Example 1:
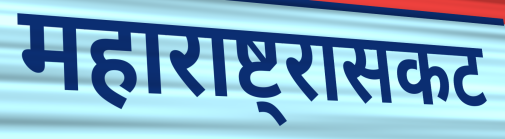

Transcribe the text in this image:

महाराष्ट्रासकट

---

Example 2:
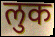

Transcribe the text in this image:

लुक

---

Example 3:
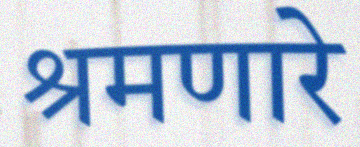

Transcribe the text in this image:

श्रमणारे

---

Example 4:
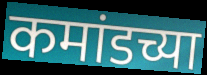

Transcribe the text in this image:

कमांडच्या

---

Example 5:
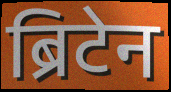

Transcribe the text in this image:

ब्रिटेन